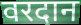
वरदान